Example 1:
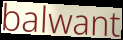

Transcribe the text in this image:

balwant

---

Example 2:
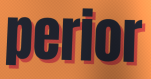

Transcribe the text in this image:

perior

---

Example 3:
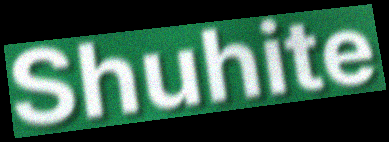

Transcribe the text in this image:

Shuhite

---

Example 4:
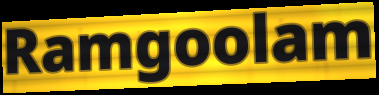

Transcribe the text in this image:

Ramgoolam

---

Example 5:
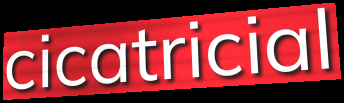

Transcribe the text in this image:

cicatricial